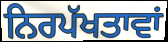
ਨਿਰਪੱਖਤਾਵਾਂ